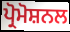
ਪ੍ਰੋਮੋਸ਼ਨਲ